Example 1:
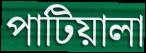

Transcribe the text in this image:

পাটিয়ালা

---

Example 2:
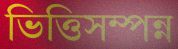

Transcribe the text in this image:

ভিত্তিসম্পন্ন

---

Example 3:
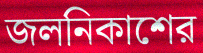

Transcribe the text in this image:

জলনিকাশের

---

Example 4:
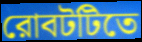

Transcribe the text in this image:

রোবটটিতে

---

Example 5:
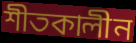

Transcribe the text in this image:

শীতকালীন